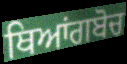
ਥਿਆਂਗਬੋਚ